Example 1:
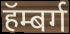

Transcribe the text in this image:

हॅम्बर्ग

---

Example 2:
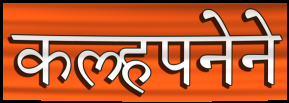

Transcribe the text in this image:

कल्हपनेने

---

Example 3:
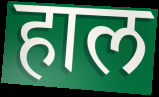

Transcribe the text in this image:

हाल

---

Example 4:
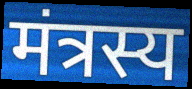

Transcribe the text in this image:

मंत्रस्य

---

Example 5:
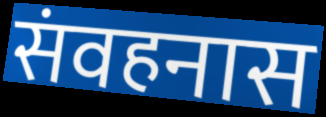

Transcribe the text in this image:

संवहनास